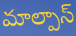
మాల్పాస్